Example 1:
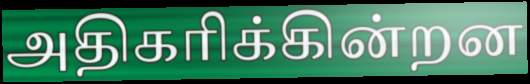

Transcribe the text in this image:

அதிகரிக்கின்றன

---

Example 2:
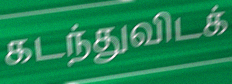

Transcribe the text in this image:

கடந்துவிடக்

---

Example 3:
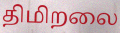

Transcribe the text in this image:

திமிறலை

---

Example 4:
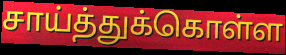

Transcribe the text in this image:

சாய்த்துக்கொள்ள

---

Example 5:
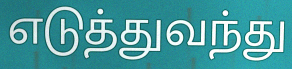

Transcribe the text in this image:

எடுத்துவந்து